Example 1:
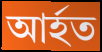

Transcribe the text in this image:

আর্হত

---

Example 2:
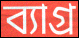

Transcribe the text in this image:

ব্যাগ্র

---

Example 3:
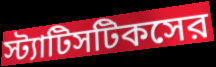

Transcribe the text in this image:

স্ট্যাটিসটিকসের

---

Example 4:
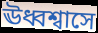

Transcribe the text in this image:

ঊধ্বশ্বাসে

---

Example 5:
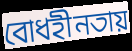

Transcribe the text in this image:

বোধহীনতায়